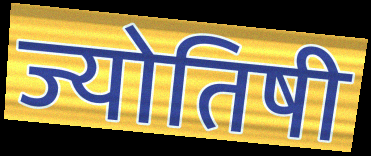
ज्योतिषी